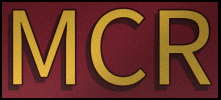
MCR